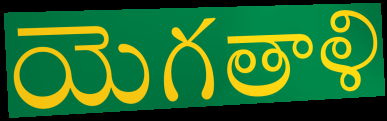
యెగతాళి